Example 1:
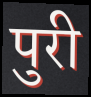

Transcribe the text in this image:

पुरी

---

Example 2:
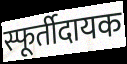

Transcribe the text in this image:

स्फूर्तीदायक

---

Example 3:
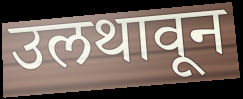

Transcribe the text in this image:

उलथावून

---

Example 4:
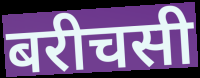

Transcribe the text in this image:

बरीचसी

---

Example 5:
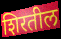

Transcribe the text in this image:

शिरतील